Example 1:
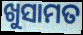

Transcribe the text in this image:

ଖୁସାମତ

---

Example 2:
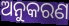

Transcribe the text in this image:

ଅନୁକରଣ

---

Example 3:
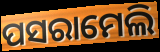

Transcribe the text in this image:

ପସରାମେଲି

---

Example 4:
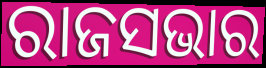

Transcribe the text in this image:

ରାଜସଭାର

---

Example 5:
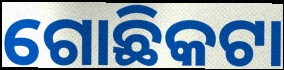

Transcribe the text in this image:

ଗୋଛିକଟା